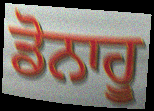
ਡੋਨਾਹੂ